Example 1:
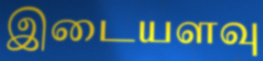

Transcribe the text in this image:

இடையளவு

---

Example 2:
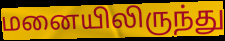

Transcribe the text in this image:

மனையிலிருந்து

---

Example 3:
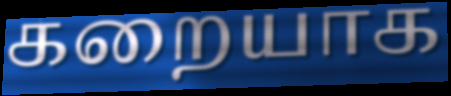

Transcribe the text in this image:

கறையாக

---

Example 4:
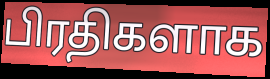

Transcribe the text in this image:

பிரதிகளாக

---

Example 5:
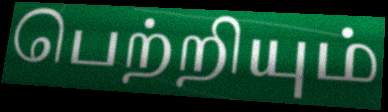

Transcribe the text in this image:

பெற்றியும்